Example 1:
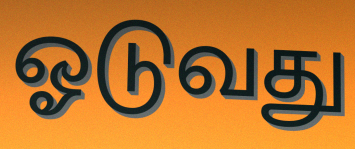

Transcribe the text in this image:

ஓடுவது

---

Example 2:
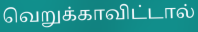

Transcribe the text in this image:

வெறுக்காவிட்டால்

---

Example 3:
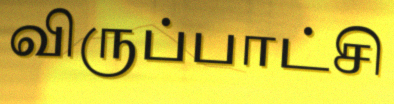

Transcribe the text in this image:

விருப்பாட்சி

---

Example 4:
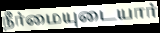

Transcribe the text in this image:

நீர்மையுடையார்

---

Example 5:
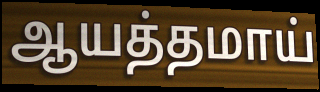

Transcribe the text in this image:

ஆயத்தமாய்